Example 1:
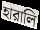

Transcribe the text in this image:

হারালি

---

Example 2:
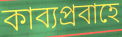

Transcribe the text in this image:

কাব্যপ্রবাহে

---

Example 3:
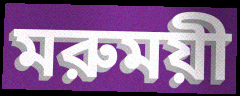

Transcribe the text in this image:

মরুময়ী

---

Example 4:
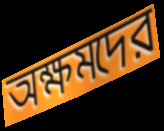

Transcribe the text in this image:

অক্ষমদের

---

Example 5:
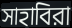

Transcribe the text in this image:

সাহাবিরা